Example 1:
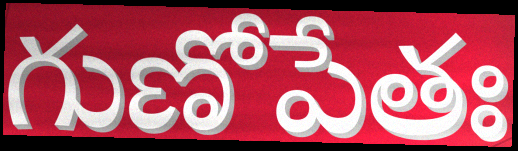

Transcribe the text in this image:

గుణోపేతః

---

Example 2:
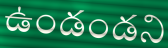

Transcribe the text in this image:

ఉండండని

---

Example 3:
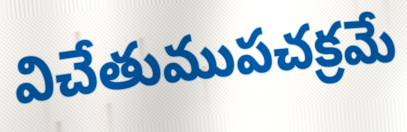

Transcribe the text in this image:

విచేతుముపచక్రమే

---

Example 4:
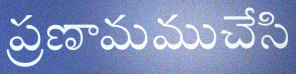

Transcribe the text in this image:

ప్రణామముచేసి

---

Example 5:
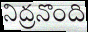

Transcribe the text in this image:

నిద్రనొంది